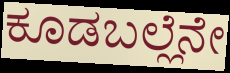
ಕೂಡಬಲ್ಲೆನೇ